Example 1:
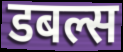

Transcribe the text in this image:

डबल्स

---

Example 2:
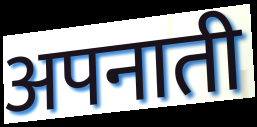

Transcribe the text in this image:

अपनाती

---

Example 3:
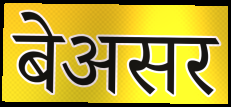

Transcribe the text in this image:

बेअसर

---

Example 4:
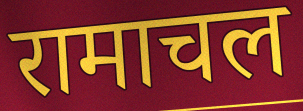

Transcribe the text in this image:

रामाचल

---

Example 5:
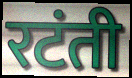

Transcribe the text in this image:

रटंती